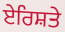
ਏਰਿਸ਼ਤੇ